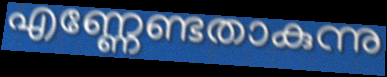
എണ്ണേണ്ടതാകുന്നു